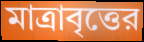
মাত্রাবৃত্তের